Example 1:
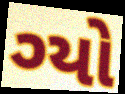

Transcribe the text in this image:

ગ્યો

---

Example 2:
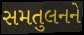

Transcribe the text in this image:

સમતુલનને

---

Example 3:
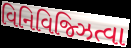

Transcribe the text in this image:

વિનિવિજ્ઝિત્વા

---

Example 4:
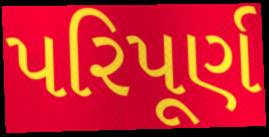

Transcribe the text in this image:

પરિપૂર્ણ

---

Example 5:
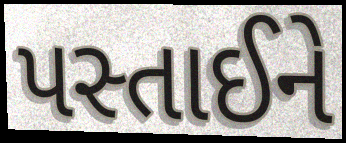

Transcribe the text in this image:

પસ્તાઈને